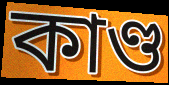
কাণ্ড